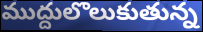
ముద్దులొలుకుతున్న